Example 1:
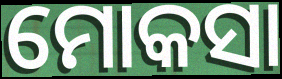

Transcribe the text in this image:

ମୋକସା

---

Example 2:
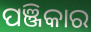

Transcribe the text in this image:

ପଞ୍ଜିକାର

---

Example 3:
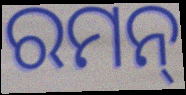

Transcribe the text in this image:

ରମନ୍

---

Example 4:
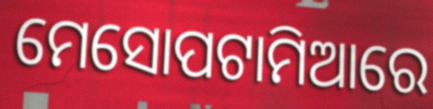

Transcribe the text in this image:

ମେସୋପଟାମିଆରେ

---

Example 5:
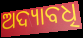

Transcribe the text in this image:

ଅଦ୍ୟାବଧି